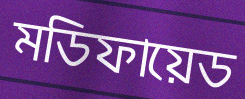
মডিফায়েড